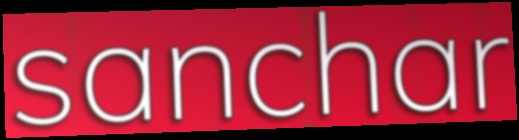
sanchar